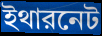
ইথারনেট